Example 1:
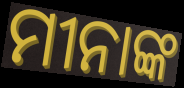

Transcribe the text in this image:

ମୀନାଙ୍କ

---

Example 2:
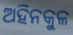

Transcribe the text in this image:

ଅହିନକୁଳ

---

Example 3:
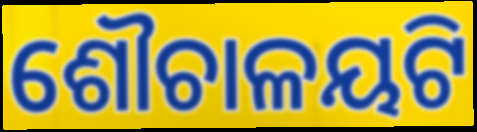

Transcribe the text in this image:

ଶୌଚାଳୟଟି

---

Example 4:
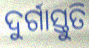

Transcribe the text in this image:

ଦୁର୍ଗାସ୍ତୁତି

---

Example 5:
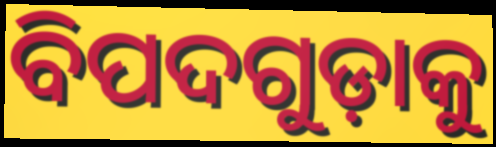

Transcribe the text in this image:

ବିପଦଗୁଡ଼ାକୁ